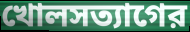
খোলসত্যাগের